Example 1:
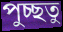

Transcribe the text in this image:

পুচ্ছতু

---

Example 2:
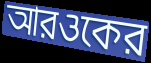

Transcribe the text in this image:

আরওকের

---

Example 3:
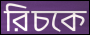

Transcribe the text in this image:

রিচকে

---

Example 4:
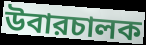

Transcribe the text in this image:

উবারচালক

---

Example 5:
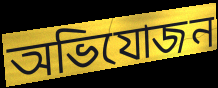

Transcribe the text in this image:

অভিযোজন